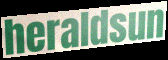
heraldsun